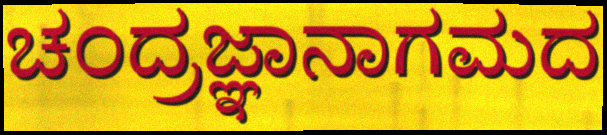
ಚಂದ್ರಜ್ಞಾನಾಗಮದ